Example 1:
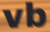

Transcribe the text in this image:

vb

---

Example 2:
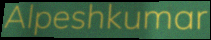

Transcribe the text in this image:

Alpeshkumar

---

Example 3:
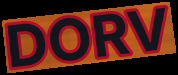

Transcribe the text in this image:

DORV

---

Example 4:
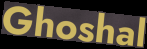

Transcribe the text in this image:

Ghoshal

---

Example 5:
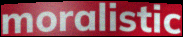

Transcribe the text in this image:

moralistic